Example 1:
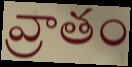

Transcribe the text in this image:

వ్రాతం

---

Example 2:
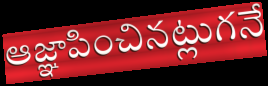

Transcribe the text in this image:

ఆజ్ఞాపించినట్లుగనే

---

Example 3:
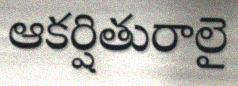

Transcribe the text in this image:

ఆకర్షితురాలై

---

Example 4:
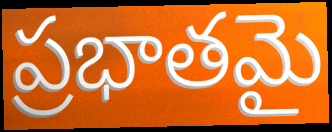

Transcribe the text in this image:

ప్రభాతమై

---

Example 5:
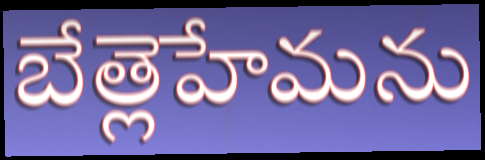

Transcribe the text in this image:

బేత్లెహేమను